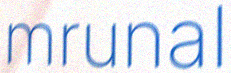
mrunal